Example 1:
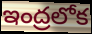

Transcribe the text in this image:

ఇంద్రలోక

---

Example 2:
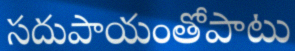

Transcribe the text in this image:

సదుపాయంతోపాటు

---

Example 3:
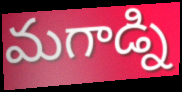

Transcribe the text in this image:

మగాడ్ని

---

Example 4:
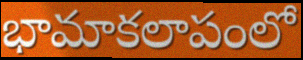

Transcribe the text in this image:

భామాకలాపంలో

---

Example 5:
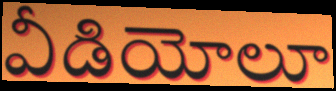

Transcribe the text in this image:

వీడియోలూ